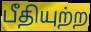
பீதியுற்ற